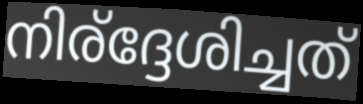
നിര്ദ്ദേശിച്ചത്